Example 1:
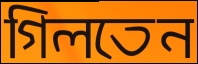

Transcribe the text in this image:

গিলতেন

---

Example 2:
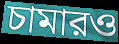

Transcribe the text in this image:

চামারও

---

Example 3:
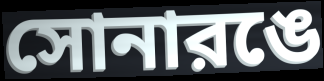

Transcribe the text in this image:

সোনারঙে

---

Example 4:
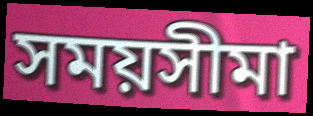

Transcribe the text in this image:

সময়সীমা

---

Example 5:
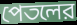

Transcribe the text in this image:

পেতলের